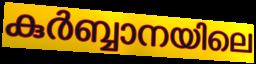
കുർബ്ബാനയിലെ